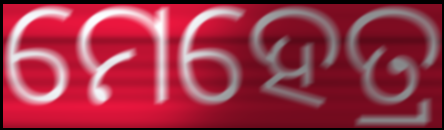
ମେହେତ୍ର